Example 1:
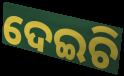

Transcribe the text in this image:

ଦେଇଚି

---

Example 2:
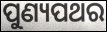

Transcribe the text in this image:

ପୁଣ୍ୟପଥର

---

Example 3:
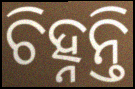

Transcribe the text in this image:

ଚିହ୍ନନ୍ତି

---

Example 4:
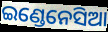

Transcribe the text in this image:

ଇଣ୍ଡେନେସିଆ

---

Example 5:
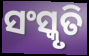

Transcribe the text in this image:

ସଂସ୍କୃତି